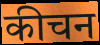
कीचन